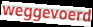
weggevoerd